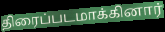
திரைப்படமாக்கினார்